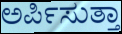
ಅರ್ಪಿಸುತ್ತಾ